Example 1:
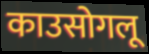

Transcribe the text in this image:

काउसोगलू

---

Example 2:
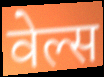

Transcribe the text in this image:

वेल्स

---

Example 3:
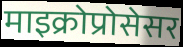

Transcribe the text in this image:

माइक्रोप्रोसेसर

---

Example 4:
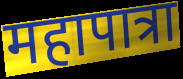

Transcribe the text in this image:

महापात्रा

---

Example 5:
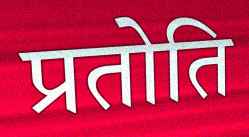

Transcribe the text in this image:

प्रतोति